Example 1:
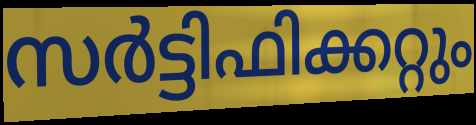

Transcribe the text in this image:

സർട്ടിഫിക്കറ്റും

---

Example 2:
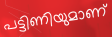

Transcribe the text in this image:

പട്ടിണിയുമാണ്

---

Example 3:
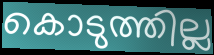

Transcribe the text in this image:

കൊടുത്തില്ല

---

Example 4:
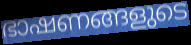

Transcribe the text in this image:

ഭാഷണങ്ങളുടെ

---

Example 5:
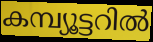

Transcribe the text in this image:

കമ്പ്യൂട്ടറിൽ